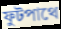
ফুটপাথে